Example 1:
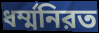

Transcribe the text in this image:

ধর্ম্মনিরত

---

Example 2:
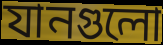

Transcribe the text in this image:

যানগুলো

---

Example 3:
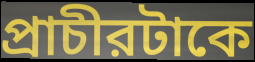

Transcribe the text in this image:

প্রাচীরটাকে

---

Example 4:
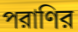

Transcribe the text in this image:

পরাণির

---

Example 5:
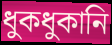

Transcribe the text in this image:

ধুকধুকানি